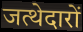
जत्थेदारों